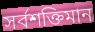
সৰ্বশক্তিমান